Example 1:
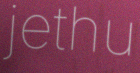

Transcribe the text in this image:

jethu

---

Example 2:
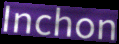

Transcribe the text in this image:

Inchon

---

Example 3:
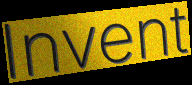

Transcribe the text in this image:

Invent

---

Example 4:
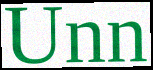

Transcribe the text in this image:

Unn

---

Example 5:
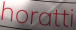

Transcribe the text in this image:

horatti